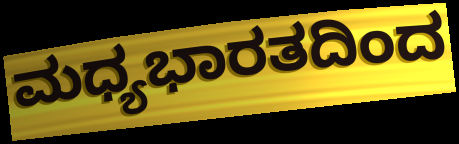
ಮಧ್ಯಭಾರತದಿಂದ